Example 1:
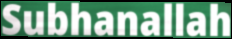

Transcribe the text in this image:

Subhanallah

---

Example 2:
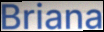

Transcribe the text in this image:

Briana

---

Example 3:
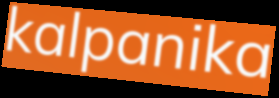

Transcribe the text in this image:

kalpanika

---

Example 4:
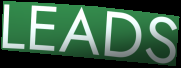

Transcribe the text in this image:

LEADS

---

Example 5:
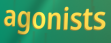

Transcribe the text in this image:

agonists